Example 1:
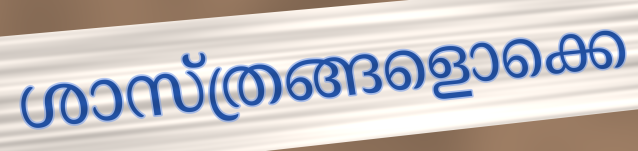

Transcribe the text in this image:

ശാസ്ത്രങ്ങളൊക്കെ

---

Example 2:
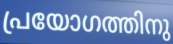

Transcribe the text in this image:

പ്രയോഗത്തിനു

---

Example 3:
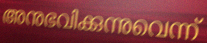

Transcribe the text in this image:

അനുഭവിക്കുന്നുവെന്ന്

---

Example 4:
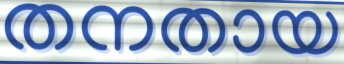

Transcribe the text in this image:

തനതായ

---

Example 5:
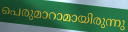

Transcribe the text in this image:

പെരുമാറാമായിരുന്നു